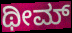
ಥೀಮ್